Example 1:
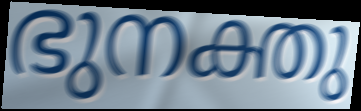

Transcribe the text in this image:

ഭുനക്തു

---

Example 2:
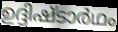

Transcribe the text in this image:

ഉദ്ദിഷ്ടാർഥം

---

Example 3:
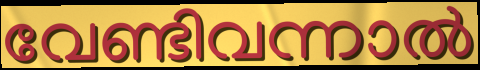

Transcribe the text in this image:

വേണ്ടിവന്നാൽ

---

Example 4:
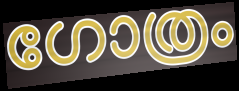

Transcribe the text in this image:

ഗോത്രം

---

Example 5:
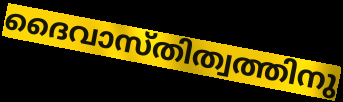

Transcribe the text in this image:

ദൈവാസ്തിത്വത്തിനു